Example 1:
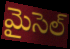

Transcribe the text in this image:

మైసెల్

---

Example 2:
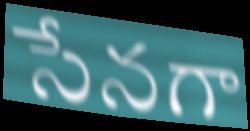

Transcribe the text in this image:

సేనగా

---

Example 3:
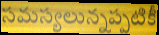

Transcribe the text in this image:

సమస్యలున్నప్పటికీ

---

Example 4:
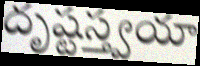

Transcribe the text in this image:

దృష్టస్త్వయా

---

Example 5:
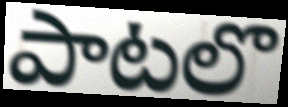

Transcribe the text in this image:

పాటలొ